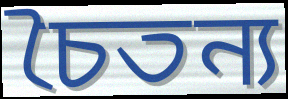
চৈতন্য